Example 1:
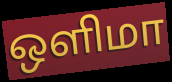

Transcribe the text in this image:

ஒளிமா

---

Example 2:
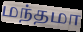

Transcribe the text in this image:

மந்தமா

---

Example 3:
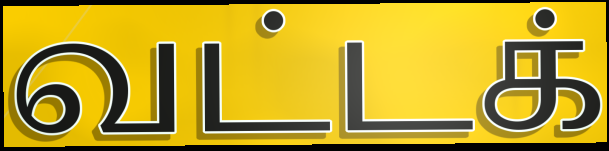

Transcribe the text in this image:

வட்டக்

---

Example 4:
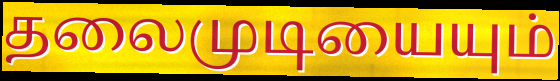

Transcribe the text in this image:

தலைமுடியையும்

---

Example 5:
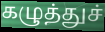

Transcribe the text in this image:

கழுத்துச்